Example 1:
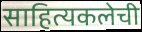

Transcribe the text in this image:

साहित्यकलेची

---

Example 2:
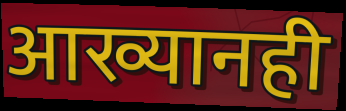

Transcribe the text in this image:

आख्यानही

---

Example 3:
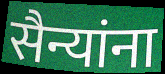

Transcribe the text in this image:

सैन्यांना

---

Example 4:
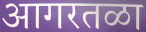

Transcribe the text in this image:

आगरतळा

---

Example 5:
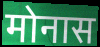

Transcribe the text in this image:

मोनास